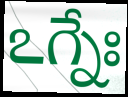
ఽగ్నేః